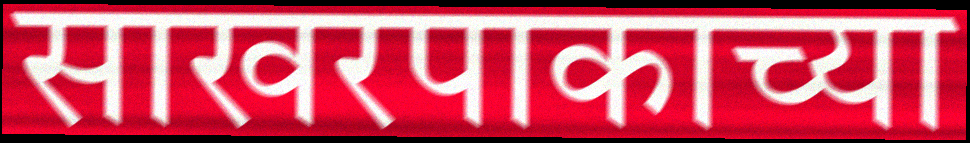
साखरपाकाच्या